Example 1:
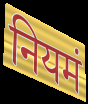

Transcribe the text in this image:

नियमं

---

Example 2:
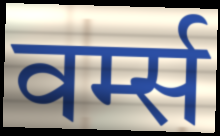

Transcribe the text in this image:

वर्म्स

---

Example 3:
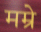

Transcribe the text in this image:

मम्रे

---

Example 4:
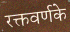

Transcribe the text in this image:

रक्तवर्णके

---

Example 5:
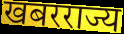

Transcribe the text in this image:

खबरराज्य